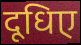
दूधिए